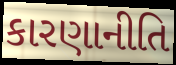
કારણાનીતિ